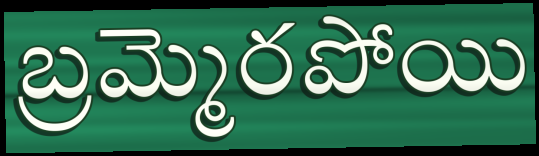
బ్రమ్మెరపోయి